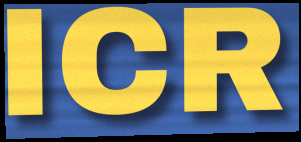
ICR